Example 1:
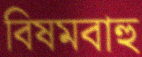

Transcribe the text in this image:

বিষমবাহু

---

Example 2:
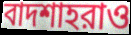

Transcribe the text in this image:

বাদশাহরাও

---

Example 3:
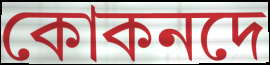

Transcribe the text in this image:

কোকনদে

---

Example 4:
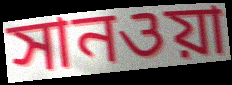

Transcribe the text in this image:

সানওয়া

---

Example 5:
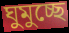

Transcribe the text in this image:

ঘুমুচ্ছে